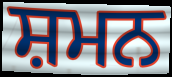
ਸ਼ਮਨ